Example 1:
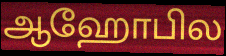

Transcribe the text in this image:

ஆஹோபில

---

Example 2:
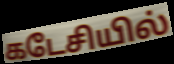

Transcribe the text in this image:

கடேசியில்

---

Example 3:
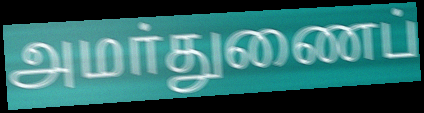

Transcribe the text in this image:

அமர்துணைப்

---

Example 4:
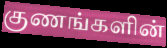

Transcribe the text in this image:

குணங்களின்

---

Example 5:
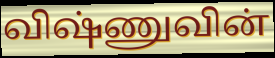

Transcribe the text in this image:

விஷ்ணுவின்